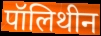
पॉलिथीन